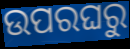
ଉପରଘରୁ